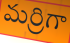
మర్రిగా